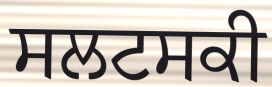
ਸਲਟਸਕੀ